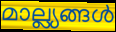
മാല്ല്യങ്ങൾ